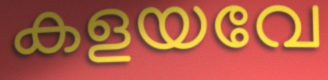
കളയവേ